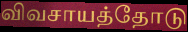
விவசாயத்தோடு